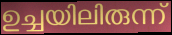
ഉച്ചയിലിരുന്ന്